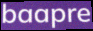
baapre